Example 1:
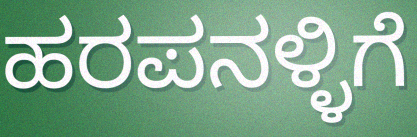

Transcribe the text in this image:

ಹರಪನಳ್ಳಿಗೆ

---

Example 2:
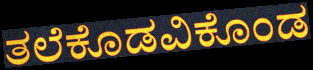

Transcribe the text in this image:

ತಲೆಕೊಡವಿಕೊಂಡ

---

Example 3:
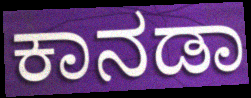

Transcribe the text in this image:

ಕಾನಡಾ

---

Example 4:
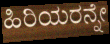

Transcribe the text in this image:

ಹಿರಿಯರನ್ನೇ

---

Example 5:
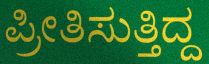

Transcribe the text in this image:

ಪ್ರೀತಿಸುತ್ತಿದ್ದ